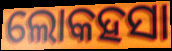
ଲୋକହସା